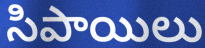
సిపాయిలు